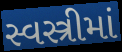
સ્વસ્ત્રીમાં